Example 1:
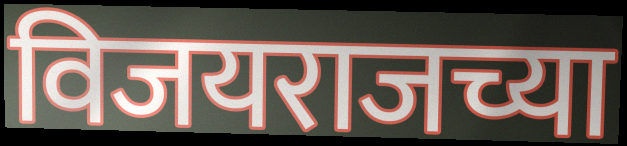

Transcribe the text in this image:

विजयराजच्या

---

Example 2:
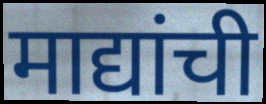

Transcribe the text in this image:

माद्यांची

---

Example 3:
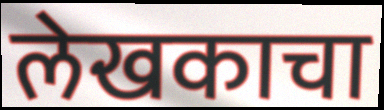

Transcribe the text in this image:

लेखकाचा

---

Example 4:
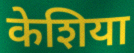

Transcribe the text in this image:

केशिया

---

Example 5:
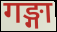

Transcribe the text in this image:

गङ्गा